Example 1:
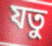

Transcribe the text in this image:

যতু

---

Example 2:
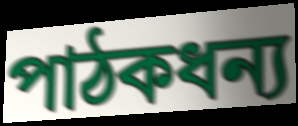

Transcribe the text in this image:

পাঠকধন্য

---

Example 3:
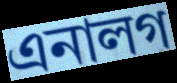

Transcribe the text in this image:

এনালগ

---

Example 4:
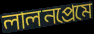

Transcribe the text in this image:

লালনপ্রেমে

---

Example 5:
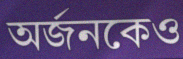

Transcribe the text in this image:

অর্জনকেও